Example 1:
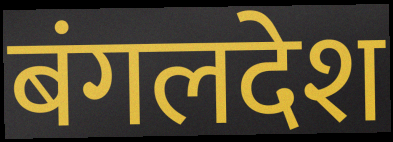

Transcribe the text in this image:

बंगलदेश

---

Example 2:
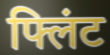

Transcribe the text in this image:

फ्लिंट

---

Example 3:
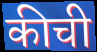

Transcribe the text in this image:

कीची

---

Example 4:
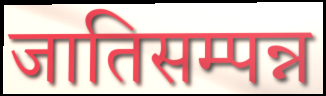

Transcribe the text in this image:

जातिसम्पन्न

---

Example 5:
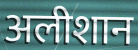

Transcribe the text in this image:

अलीशान